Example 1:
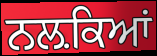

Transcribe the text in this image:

ਨਲ਼ਕਿਆਂ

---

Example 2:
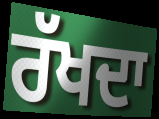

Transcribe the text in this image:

ਰੱਖਦਾ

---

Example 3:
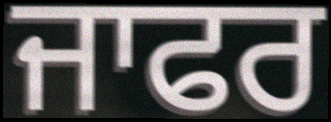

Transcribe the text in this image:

ਜਾਫਰ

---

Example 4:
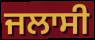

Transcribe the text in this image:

ਜਲਾਸੀ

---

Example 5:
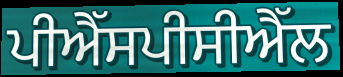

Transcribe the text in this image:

ਪੀਐੱਸਪੀਸੀਐੱਲ